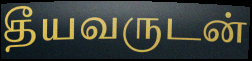
தீயவருடன்